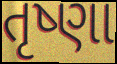
તૃષ્ણા